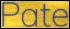
Pate